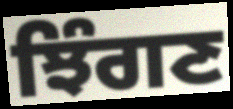
ਝਿੰਗਣ